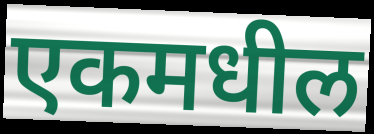
एकमधील